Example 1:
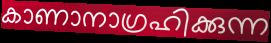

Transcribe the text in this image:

കാണാനാഗ്രഹിക്കുന്ന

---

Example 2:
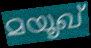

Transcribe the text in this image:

മയൂഖ്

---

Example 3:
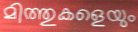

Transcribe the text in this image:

മിത്തുകളെയും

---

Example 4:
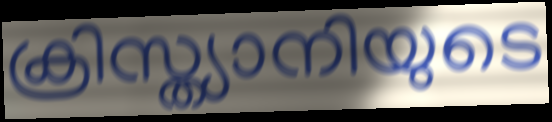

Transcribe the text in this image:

ക്രിസ്ത്യാനിയുടെ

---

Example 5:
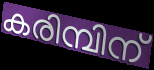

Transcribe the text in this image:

കരിമ്പിന്